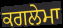
ਕਗਲੇਮਾ